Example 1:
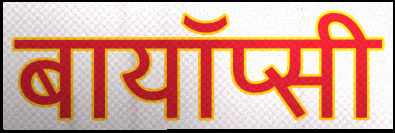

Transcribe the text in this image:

बायॉप्सी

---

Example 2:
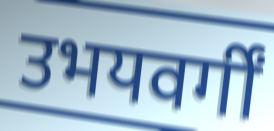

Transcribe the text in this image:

उभयवर्गीं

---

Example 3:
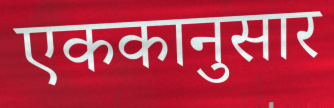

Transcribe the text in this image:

एककानुसार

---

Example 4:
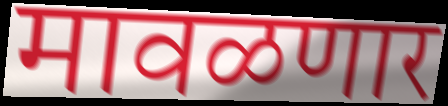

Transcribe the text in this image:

मावळणार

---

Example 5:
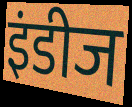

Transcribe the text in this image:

इंडीज